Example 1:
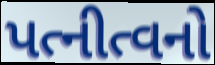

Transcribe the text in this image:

પત્નીત્વનો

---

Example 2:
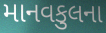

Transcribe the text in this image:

માનવકુલના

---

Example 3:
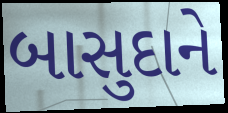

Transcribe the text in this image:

બાસુદાને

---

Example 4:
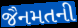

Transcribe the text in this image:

જૈનમતની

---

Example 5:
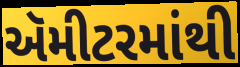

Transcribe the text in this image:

ઍમીટરમાંથી